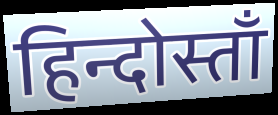
हिन्दोस्ताँ